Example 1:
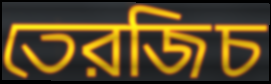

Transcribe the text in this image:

তেরজিচ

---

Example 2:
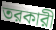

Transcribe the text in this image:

তরকারী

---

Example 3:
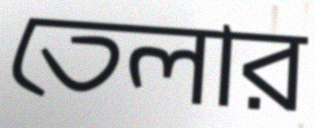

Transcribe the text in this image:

তেলার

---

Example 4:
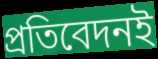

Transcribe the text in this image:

প্রতিবেদনই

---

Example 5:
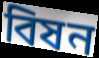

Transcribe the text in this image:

বিষন